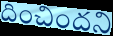
దించిందని